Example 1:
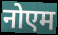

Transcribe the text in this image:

नोएम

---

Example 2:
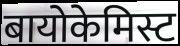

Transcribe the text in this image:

बायोकेमिस्ट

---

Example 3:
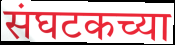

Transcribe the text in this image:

संघटकच्या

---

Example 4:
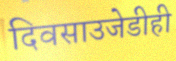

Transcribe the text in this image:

दिवसाउजेडीही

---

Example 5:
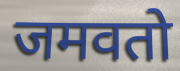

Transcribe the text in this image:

जमवतो